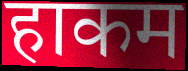
हाकम